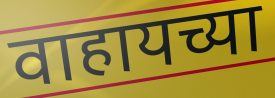
वाहायच्या